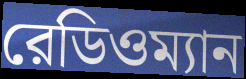
রেডিওম্যান